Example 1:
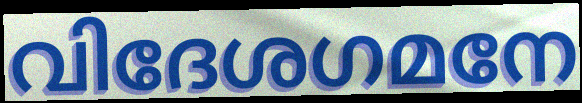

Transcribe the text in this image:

വിദേശഗമനേ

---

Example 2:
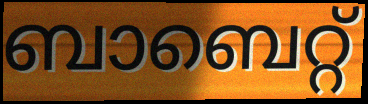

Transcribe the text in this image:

ബാബെറ്റ്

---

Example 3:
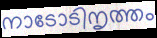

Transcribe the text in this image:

നാടോടിനൃത്തം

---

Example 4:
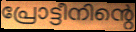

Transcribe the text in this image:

പ്രോട്ടീനിന്റെ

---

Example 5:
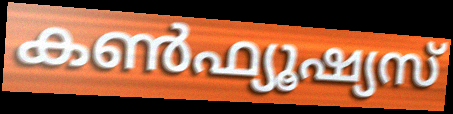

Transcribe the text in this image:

കൺഫ്യൂഷ്യസ്